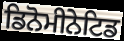
ਡਿਨੋਮੀਨੇਟਿਡ